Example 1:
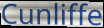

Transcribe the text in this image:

Cunliffe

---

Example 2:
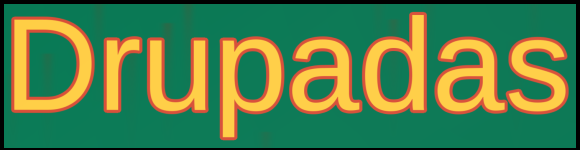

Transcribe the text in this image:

Drupadas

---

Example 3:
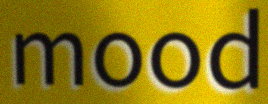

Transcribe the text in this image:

mood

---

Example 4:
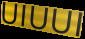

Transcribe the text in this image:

UIUUI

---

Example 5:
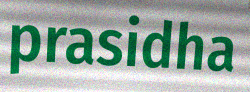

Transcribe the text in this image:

prasidha